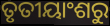
ତୃତୀୟାଂଶରୁ